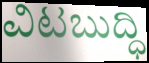
ವಿಟಬುದ್ಧಿ